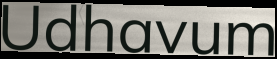
Udhavum